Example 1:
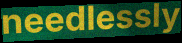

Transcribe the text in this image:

needlessly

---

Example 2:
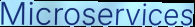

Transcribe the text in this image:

Microservices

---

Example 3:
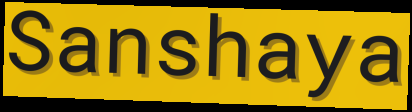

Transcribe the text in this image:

Sanshaya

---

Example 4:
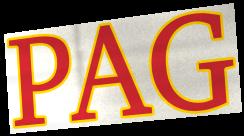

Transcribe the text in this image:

PAG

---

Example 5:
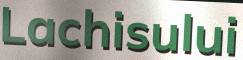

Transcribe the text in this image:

Lachisului